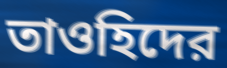
তাওহিদের